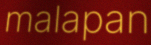
malapan